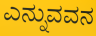
ಎನ್ನುವವನ